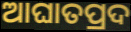
ଆଘାତପ୍ରଦ